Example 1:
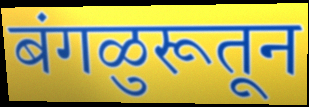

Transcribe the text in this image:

बंगळुरूतून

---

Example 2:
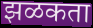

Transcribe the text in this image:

झळकता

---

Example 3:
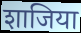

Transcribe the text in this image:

शाजिया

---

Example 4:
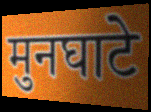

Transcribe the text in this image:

मुनघाटे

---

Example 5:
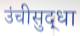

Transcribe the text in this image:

उंचीसुद्धा